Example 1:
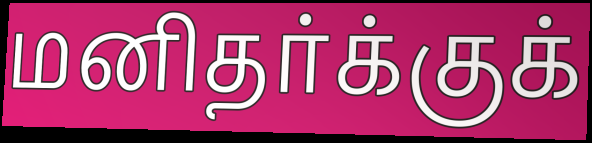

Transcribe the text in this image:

மனிதர்க்குக்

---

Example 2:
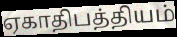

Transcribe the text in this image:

ஏகாதிபத்தியம்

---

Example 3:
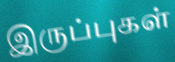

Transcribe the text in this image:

இருப்புகள்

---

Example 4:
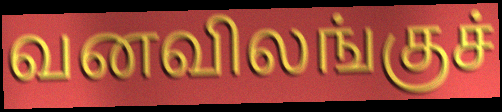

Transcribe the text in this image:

வனவிலங்குச்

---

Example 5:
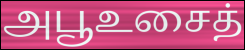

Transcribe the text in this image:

அபூஉசைத்